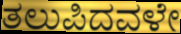
ತಲುಪಿದವಳೇ